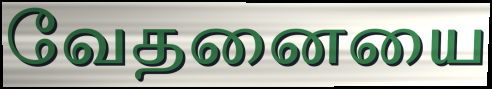
வேதனையை